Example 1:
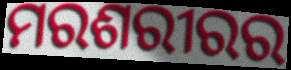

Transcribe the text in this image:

ମରଶରୀରର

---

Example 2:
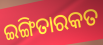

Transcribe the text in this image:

ଇଙ୍ଗିତାରକତ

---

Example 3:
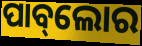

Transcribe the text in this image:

ପାବ୍‌ଲୋର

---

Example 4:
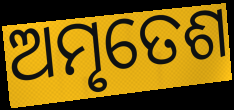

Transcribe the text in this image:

ଅମୃତେଶ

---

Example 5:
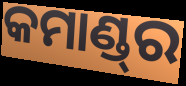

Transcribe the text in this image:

କମାଣ୍ଡ୍‌ର